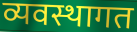
व्यवस्थागत